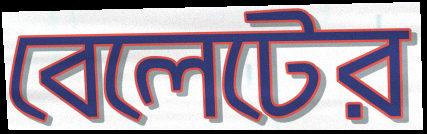
বেলেটের